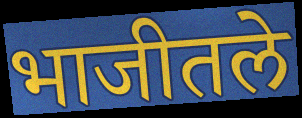
भाजीतले